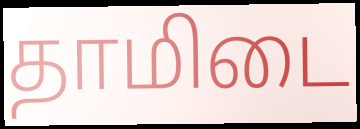
தாமிடை